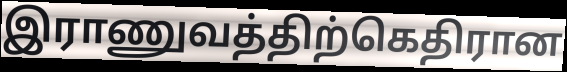
இராணுவத்திற்கெதிரான